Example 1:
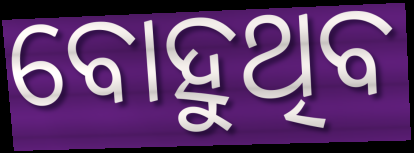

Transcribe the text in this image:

ବୋହୁଥିବ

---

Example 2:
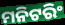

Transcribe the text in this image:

ମନିଟରିଂ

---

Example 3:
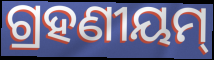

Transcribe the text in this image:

ଗ୍ରହଣୀୟମ୍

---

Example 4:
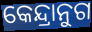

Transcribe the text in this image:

କେନ୍ଦ୍ରାନୁଗ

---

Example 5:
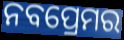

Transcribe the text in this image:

ନବପ୍ରେମର